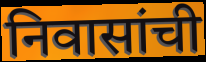
निवासांची